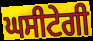
ਘਸੀਟੇਗੀ